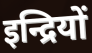
इन्द्रियों